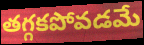
తగ్గకపోవడమే